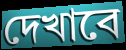
দেখাবে